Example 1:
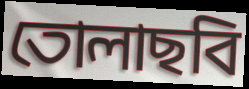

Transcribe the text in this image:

তোলাছবি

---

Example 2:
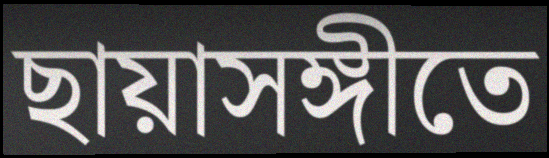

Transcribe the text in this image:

ছায়াসঙ্গীতে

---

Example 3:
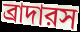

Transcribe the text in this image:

ব্রাদারস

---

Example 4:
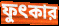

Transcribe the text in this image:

ফুৎকার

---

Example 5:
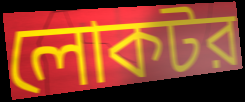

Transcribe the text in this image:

লোকটর